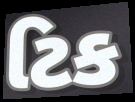
ટિક